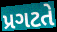
પ્રગટતે